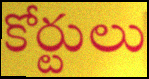
కోర్టులు